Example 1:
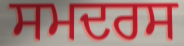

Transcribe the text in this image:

ਸਮਦਰਸ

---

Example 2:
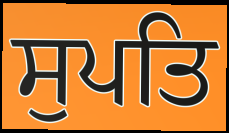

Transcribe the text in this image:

ਸੁਪਤਿ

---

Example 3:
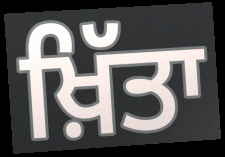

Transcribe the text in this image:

ਖ਼ਿੱਤਾ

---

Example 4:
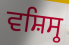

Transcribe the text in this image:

ਵਸ਼ਿਸ੍ਠ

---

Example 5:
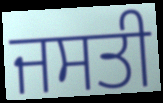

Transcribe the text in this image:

ਜਸਤੀ